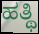
ಹತ್ಥಿ